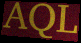
AQL